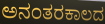
ಅನಂತರಕಾಲದ